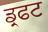
ਡ੍ਰਫਟ